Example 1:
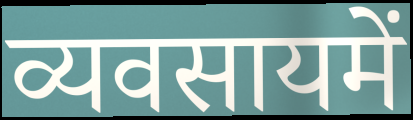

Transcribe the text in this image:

व्यवसायमें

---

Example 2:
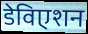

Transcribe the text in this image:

डेविएशन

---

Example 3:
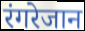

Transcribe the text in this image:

रंगरेजान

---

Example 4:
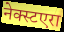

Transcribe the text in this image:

नेक्स्टएरा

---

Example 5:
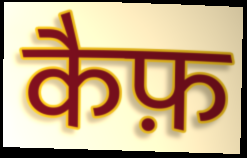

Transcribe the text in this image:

कैफ़